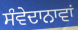
ਸੰਵੇਦਾਨਾਵਾਂ